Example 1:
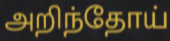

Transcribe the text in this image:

அறிந்தோய்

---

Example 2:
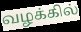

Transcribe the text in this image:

வழக்கில்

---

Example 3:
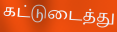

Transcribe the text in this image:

கட்டுடைத்து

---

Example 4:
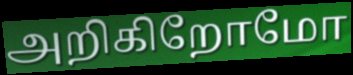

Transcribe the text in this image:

அறிகிறோமோ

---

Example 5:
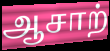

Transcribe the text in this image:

ஆசாற்